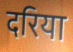
दरिया